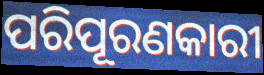
ପରିପୂରଣକାରୀ